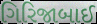
ગિરિજાબાઈ